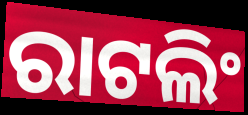
ରାଟଲିଂ